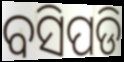
ବସିପଡି